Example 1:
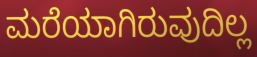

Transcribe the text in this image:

ಮರೆಯಾಗಿರುವುದಿಲ್ಲ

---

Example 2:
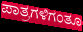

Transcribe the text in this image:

ಪಾತ್ರಗಳಿಗಂತೂ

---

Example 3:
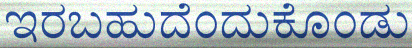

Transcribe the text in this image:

ಇರಬಹುದೆಂದುಕೊಂಡು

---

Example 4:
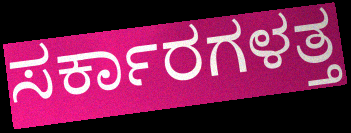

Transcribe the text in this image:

ಸರ್ಕಾರಗಳತ್ತ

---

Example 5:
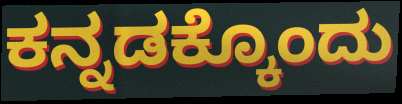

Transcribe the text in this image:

ಕನ್ನಡಕ್ಕೊಂದು